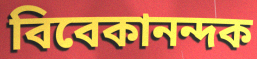
বিবেকানন্দক